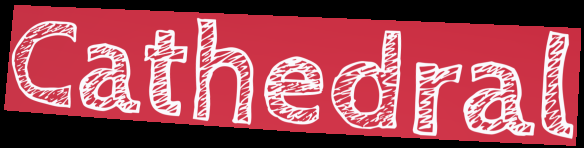
Cathedral